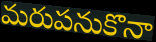
మరుపనుకొనా